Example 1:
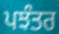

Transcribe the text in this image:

ਪਝੰਤਰ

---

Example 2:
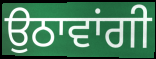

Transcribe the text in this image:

ਉਠਾਵਾਂਗੀ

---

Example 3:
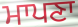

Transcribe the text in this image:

ਮਾਪਣਾ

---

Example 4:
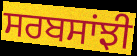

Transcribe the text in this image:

ਸਰਬਸਾਂਝੀ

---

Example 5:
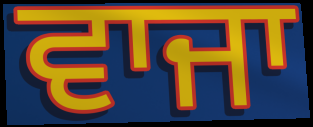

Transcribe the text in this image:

ਵਾਜਾ